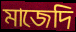
মাজেদি